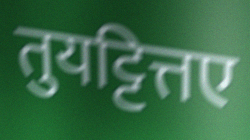
तुयट्टित्तए